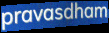
pravasdham